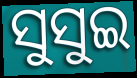
ସୁସୁଇ